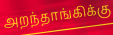
அறந்தாங்கிக்கு